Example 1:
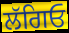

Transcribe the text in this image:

ਲੱਗਿਓ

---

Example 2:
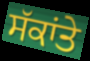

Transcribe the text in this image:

ਸੱਕਾਂਤੇ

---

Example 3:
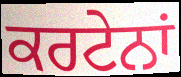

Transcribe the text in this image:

ਕਰਟੇਨਾਂ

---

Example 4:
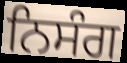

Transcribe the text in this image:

ਨਿਸੰਗ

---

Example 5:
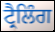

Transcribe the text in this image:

ਟ੍ਰੈਲਿੰਗ